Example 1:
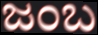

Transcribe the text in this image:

ಜಂಬ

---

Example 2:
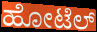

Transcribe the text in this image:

ಹೋಟೆಲ್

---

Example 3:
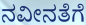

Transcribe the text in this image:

ನವೀನತೆಗೆ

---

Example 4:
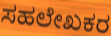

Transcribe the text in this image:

ಸಹಲೇಖಕರ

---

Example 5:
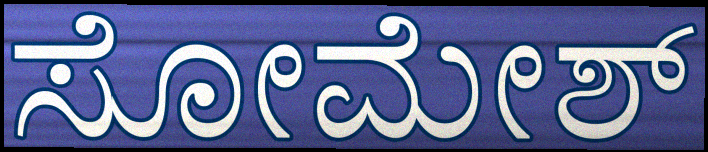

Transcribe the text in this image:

ಸೋಮೇಶ್